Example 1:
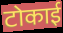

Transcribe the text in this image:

टोकाई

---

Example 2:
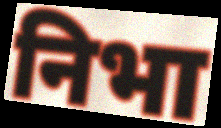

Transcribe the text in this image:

निभा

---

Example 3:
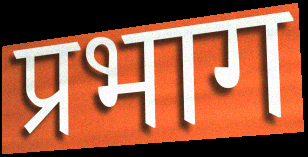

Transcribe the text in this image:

प्रभाग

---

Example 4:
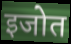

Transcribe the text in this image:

इजोत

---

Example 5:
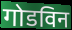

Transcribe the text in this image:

गोडविन